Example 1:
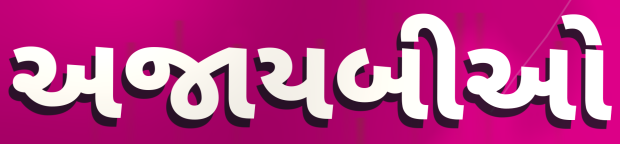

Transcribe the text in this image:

અજાયબીઓ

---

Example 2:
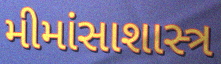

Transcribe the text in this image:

મીમાંસાશાસ્ત્ર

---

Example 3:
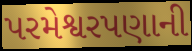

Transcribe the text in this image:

પરમેશ્વરપણાની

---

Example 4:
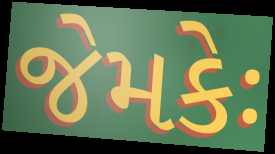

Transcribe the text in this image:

જેમકેઃ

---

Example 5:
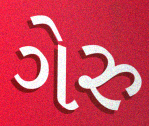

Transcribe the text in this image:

ગેરુ